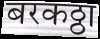
बरकठ्ठा